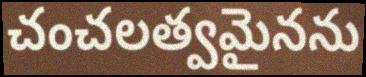
చంచలత్వమైనను